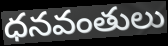
ధనవంతులు